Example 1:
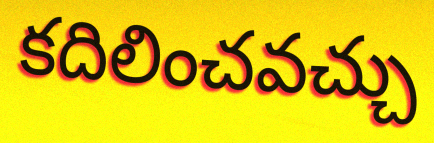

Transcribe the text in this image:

కదిలించవచ్చు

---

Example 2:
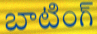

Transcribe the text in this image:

బాటింగ్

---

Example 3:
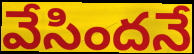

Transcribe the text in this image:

వేసిందనే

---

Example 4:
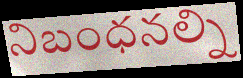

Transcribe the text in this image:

నిబంధనల్ని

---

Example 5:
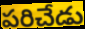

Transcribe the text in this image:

పరిచేడు